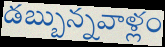
డబ్బున్నవాళ్లం